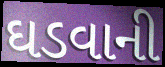
ઘડવાની